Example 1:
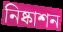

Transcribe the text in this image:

নিষ্কাশন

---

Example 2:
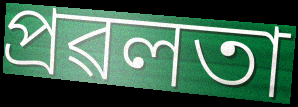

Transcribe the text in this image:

প্ৰৱলতা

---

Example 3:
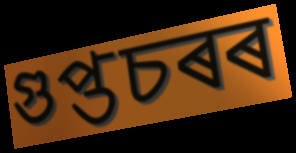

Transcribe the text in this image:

গুপ্তচৰৰ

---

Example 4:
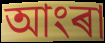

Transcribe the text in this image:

আংৰা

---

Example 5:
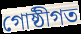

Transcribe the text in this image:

গোষ্ঠীগত